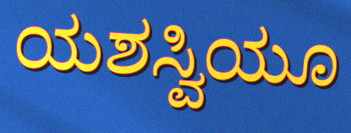
ಯಶಸ್ವಿಯೂ